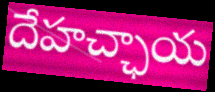
దేహచ్ఛాయ